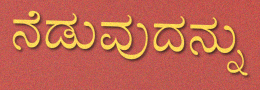
ನೆಡುವುದನ್ನು